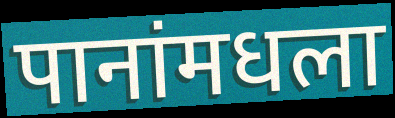
पानांमधला